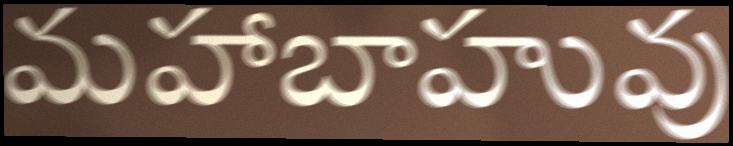
మహాబాహువు